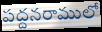
పద్దనరాములో